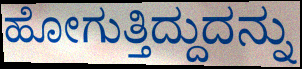
ಹೋಗುತ್ತಿದ್ದುದನ್ನು